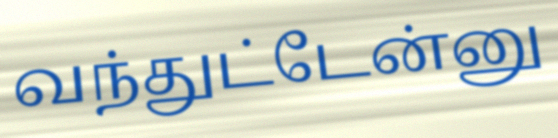
வந்துட்டேன்னு